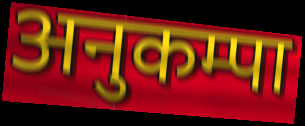
अनुकम्‍पा